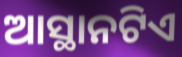
ଆସ୍ଥାନଟିଏ